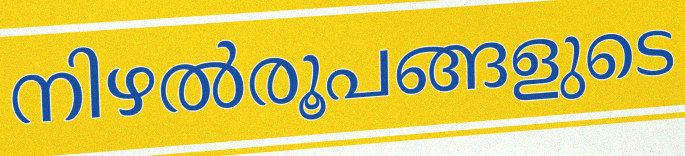
നിഴൽരൂപങ്ങളുടെ